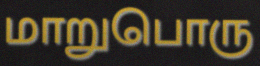
மாறுபொரு